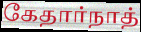
கேதார்நாத்